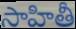
సాహితీ